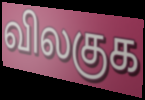
விலகுக